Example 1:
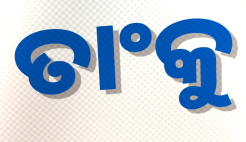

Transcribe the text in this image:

ତାଂକୁ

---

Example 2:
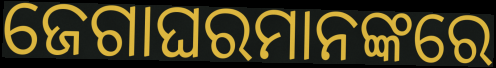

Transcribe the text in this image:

ଜେଗାଘରମାନଙ୍କରେ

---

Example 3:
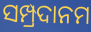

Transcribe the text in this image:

ସମ୍ପ୍ରଦାନମ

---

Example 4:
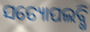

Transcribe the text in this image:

ସତ୍ୟୋପଲବ୍ଧି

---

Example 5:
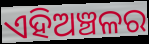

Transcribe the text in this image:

ଏହିଅଞ୍ଚଳର